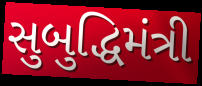
સુબુદ્ધિમંત્રી